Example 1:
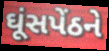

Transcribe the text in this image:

ઘૂંસપેંઠને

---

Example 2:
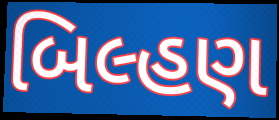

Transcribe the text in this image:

બિલ્હણ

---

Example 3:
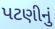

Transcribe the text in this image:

પટણીનું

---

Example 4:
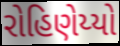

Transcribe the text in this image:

રોહિણેય્યો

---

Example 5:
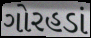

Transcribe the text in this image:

ગોરહડાં